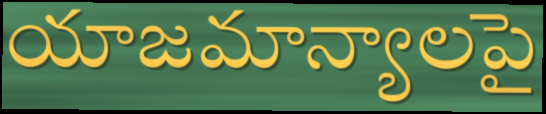
యాజమాన్యాలపై